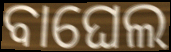
ବାଘେଲ